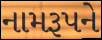
નામરૂપને